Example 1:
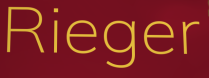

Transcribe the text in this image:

Rieger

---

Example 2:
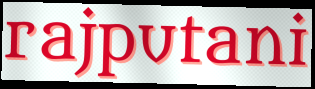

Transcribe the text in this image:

rajputani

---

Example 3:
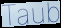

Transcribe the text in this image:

Taub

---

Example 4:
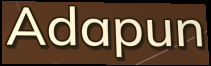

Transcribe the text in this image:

Adapun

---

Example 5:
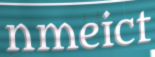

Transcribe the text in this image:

nmeict